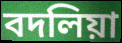
বদলিয়া